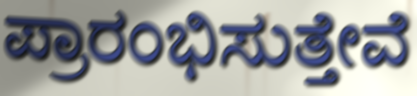
ಪ್ರಾರಂಭಿಸುತ್ತೇವೆ